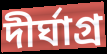
দীর্ঘাগ্র